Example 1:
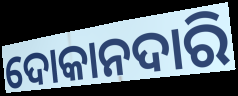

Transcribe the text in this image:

ଦୋକାନଦାରି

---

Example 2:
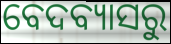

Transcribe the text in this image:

ବେଦବ୍ୟାସରୁ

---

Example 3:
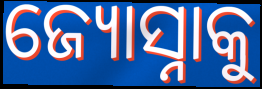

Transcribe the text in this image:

ଜ୍ୟୋସ୍ନାକୁ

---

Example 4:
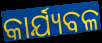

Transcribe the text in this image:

କାର୍ଯ୍ୟବଳ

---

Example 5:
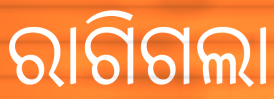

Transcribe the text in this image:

ରାଗିଗଲା